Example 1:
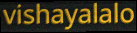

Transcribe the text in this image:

vishayalalo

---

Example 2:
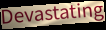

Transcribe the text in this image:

Devastating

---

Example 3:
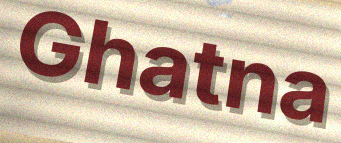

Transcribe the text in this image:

Ghatna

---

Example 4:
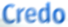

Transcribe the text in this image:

Credo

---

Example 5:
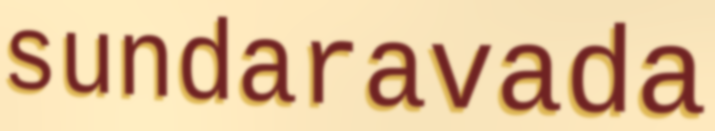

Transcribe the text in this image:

sundaravada